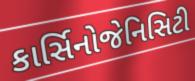
કાર્સિનોજેનિસિટી